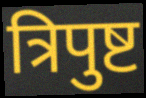
त्रिपुष्ट